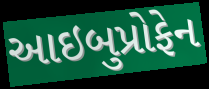
આઇબુપ્રોફેન